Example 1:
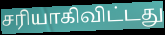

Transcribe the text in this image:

சரியாகிவிட்டது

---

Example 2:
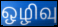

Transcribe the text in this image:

ஒழிவு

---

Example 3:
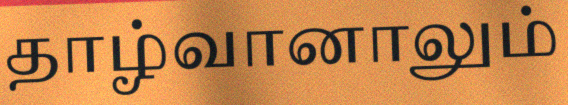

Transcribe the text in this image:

தாழ்வானாலும்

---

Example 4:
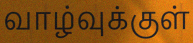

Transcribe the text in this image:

வாழ்வுக்குள்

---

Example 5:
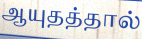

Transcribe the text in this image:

ஆயுதத்தால்